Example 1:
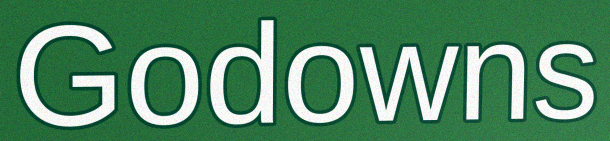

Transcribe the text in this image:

Godowns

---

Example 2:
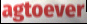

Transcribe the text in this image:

agtoever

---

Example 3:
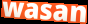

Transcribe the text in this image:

wasan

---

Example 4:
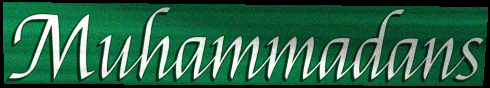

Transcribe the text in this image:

Muhammadans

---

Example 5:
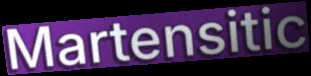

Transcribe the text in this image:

Martensitic